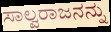
ಸಾಲ್ವರಾಜನನ್ನು